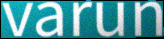
varun